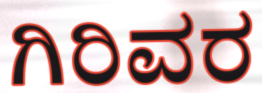
ಗಿರಿವರ